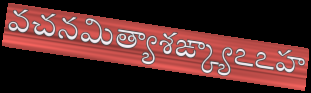
వచనమిత్యాశఙ్క్యాఽఽహ